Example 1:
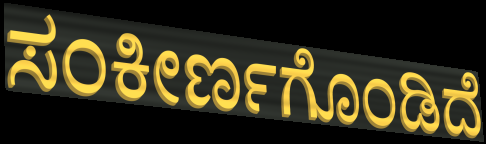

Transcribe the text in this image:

ಸಂಕೀರ್ಣಗೊಂಡಿದೆ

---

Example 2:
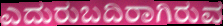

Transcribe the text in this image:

ಎದುರುಬದಿರಾಗಿರುವ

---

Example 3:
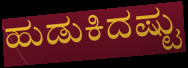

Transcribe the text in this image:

ಹುಡುಕಿದಷ್ಟು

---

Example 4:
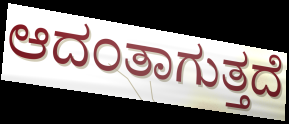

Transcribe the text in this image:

ಆದಂತಾಗುತ್ತದೆ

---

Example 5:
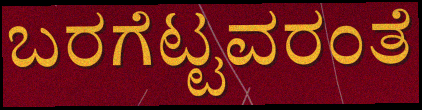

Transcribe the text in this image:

ಬರಗೆಟ್ಟವರಂತೆ